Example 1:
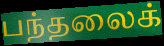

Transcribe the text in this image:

பந்தலைக்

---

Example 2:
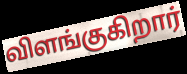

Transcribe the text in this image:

விளங்குகிறார்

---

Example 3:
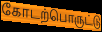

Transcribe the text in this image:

கோடற்பொருட்டு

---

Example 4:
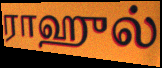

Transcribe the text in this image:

ராஹுல்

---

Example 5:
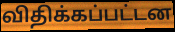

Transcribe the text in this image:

விதிக்கப்பட்டன